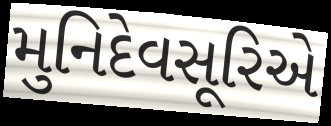
મુનિદેવસૂરિએ